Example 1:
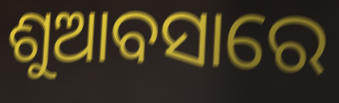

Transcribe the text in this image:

ଶୁଆବସାରେ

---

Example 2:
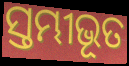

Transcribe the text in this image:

ସ୍ତମ୍ଭୀଭୂତ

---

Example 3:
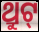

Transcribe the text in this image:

ଥ୍ରୁଟ୍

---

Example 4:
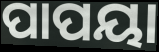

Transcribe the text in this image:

ପାପୟା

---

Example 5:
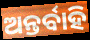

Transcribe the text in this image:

ଅନ୍ତର୍ବାହି